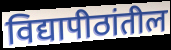
विद्यापीठांतील